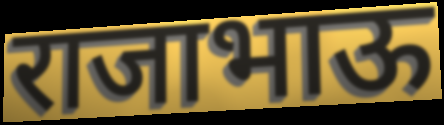
राजाभाऊ